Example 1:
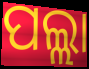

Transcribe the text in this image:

ପଲ୍ଲା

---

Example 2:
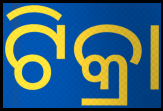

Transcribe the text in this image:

ଟିକ୍ରା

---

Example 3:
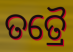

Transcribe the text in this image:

ତତ୍ରୈ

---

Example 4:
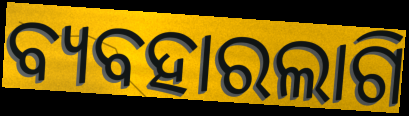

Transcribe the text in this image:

ବ୍ୟବହାରଲାଗି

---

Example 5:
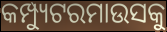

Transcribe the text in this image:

କମ୍ପ୍ୟୁଟରମାଉସକୁ